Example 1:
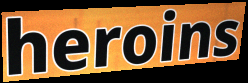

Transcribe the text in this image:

heroins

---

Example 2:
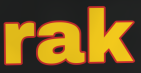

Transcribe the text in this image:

rak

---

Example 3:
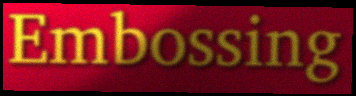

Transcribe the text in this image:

Embossing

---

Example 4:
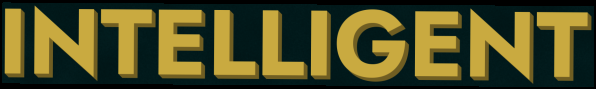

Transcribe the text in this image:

INTELLIGENT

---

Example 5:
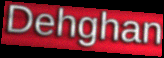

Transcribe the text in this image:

Dehghan